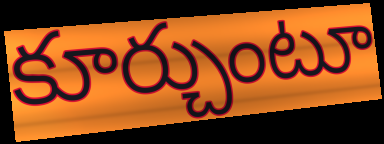
కూర్చుంటూ